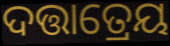
ଦତ୍ତାତ୍ରେୟ